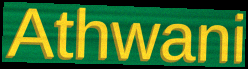
Athwani